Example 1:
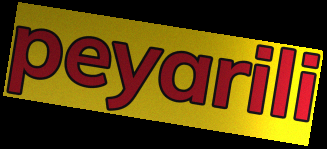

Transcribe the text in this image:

peyarili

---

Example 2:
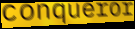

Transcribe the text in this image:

conqueror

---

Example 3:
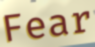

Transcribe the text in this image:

Fear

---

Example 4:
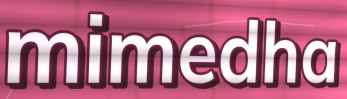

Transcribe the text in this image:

mimedha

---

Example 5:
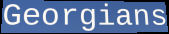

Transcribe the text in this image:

Georgians